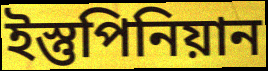
ইস্তুপিনিয়ান